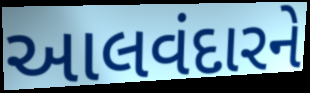
આલવંદારને